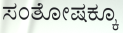
ಸಂತೋಷಕ್ಕೂ